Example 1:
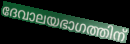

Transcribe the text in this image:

ദേവാലയഭാഗത്തിന്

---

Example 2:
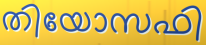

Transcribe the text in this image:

തിയോസഫി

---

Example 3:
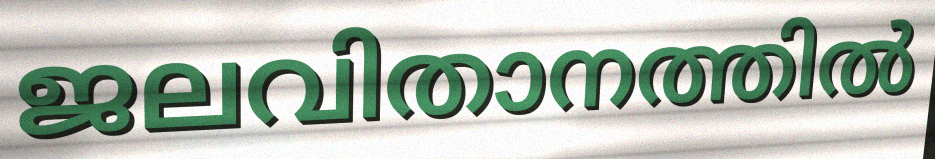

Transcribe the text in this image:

ജലവിതാനത്തിൽ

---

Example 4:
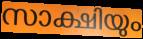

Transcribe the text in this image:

സാക്ഷിയും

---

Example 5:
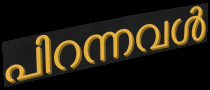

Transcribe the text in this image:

പിറന്നവൾ